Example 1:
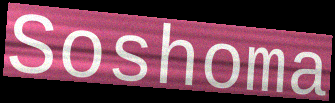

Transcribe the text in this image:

Soshoma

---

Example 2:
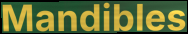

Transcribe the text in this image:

Mandibles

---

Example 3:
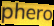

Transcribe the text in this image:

phero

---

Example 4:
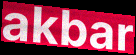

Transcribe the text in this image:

akbar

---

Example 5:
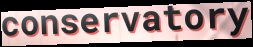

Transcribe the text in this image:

conservatory